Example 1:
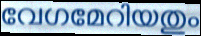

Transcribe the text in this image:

വേഗമേറിയതും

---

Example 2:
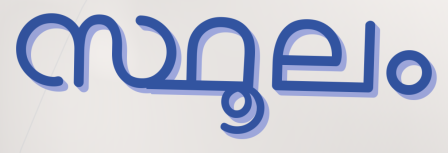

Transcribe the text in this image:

സ്ഥൂലം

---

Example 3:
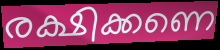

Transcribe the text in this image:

രക്ഷിക്കണെ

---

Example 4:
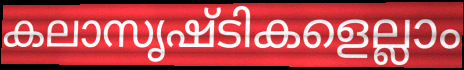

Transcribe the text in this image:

കലാസൃഷ്ടികളെല്ലാം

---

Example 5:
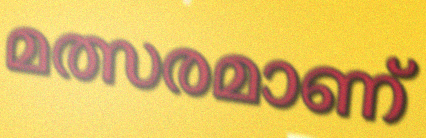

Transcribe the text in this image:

മത്സരമാണ്